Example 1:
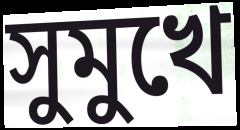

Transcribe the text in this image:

সুমুখে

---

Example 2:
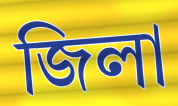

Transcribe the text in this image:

জিলা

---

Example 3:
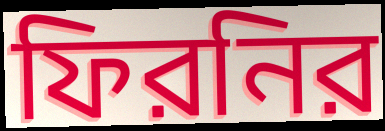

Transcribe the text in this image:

ফিরনির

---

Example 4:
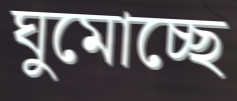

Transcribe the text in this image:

ঘুমোচ্ছে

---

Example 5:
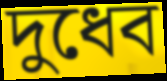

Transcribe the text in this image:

দুধেব